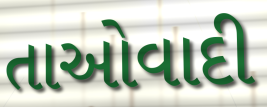
તાઓવાદી